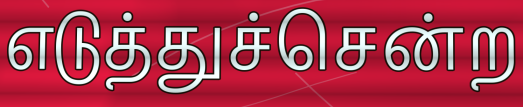
எடுத்துச்சென்ற